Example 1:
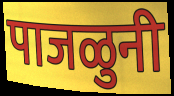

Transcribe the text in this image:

पाजळुनी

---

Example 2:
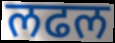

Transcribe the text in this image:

लढल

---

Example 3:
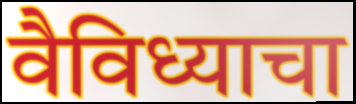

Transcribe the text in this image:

वैविध्याचा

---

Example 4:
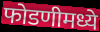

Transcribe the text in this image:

फोडणीमध्ये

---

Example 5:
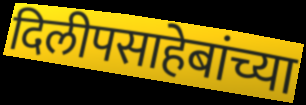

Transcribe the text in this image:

दिलीपसाहेबांच्या